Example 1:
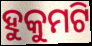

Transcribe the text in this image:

ହୁକୁମଟି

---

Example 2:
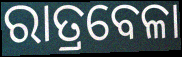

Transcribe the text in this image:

ରାତ୍ରବେଳା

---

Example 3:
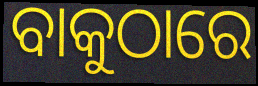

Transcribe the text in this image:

ବାକୁଠାରେ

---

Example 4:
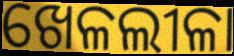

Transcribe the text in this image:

ଖେଳଲୀଳା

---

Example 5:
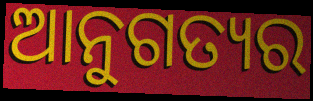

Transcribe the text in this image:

ଆନୁଗତ୍ୟର